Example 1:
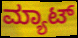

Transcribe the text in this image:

ಮ್ಯಾಟ್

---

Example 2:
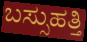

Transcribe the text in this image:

ಬಸ್ಸುಹತ್ತಿ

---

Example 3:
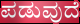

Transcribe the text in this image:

ಪಡುವುದೆ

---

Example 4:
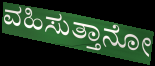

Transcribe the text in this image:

ವಹಿಸುತ್ತಾನೋ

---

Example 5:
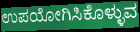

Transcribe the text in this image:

ಉಪಯೋಗಿಸಿಕೊಳ್ಳುವ